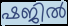
ഷജിൽ